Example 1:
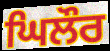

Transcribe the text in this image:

ਘਿਲੌਰ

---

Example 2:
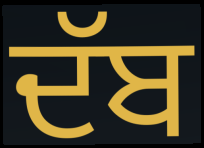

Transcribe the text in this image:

ਦੱਬ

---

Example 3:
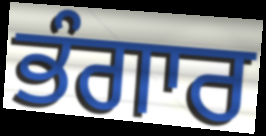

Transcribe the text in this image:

ਭੰਗਾਰ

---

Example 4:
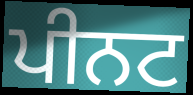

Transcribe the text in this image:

ਪੀਨਟ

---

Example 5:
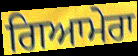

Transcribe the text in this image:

ਗਿਆਮੇਰਾ